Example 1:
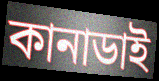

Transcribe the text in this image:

কানাডাই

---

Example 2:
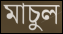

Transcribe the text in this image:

মাচুল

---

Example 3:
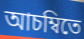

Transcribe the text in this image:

আচম্বিতে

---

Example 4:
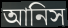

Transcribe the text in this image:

আনিস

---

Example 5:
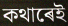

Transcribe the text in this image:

কথাৰেই